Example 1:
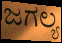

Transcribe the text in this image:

ಜಗಲ್ಯ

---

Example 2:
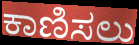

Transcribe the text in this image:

ಕಾಣಿಸಲು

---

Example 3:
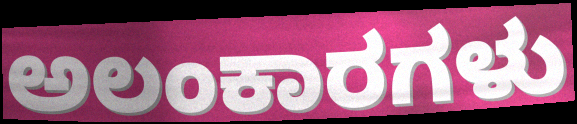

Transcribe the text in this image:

ಅಲಂಕಾರಗಳು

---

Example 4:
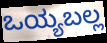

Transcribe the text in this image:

ಒಯ್ಯಬಲ್ಲ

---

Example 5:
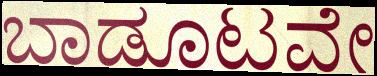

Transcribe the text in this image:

ಬಾಡೂಟವೇ